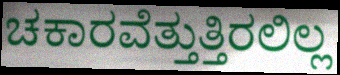
ಚಕಾರವೆತ್ತುತ್ತಿರಲಿಲ್ಲ